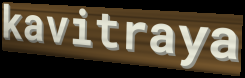
kavitraya